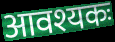
आवश्यकः